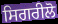
ਸਿਗਰੀਲੋ